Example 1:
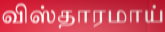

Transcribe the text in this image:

விஸ்தாரமாய்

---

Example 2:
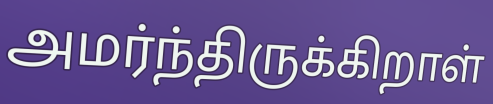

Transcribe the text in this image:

அமர்ந்திருக்கிறாள்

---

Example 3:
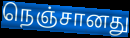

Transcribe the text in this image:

நெஞ்சானது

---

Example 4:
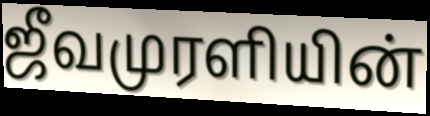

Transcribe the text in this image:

ஜீவமுரளியின்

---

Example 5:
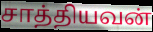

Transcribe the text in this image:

சாத்தியவன்